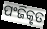
ପଂଜିକୃତ